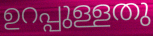
ഉറപ്പുള്ളതു